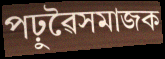
পঢ়ুৱৈসমাজক